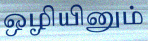
ஒழியினும்